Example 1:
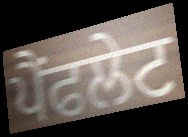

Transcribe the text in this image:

ਪੈਂਫਲੇਟ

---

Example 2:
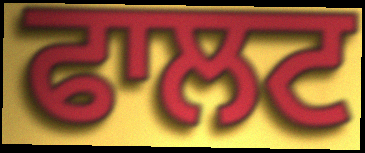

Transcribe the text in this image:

ਫਾਲਟ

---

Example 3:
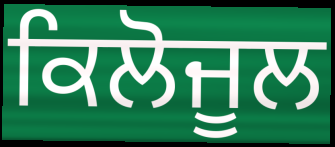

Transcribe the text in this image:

ਕਿਲੋਜੂਲ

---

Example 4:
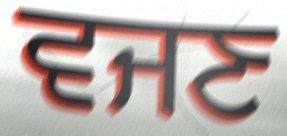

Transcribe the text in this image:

ਵਜਣ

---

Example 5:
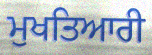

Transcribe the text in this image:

ਮੁਖਤਿਆਰੀ